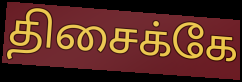
திசைக்கே